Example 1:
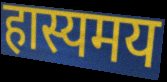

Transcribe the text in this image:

हास्यमय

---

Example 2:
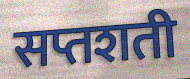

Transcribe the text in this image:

सप्तशती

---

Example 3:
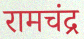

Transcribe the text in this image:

रामचंद्र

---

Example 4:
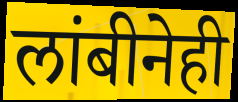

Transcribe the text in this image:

लांबीनेही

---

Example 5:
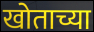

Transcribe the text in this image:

खोताच्या